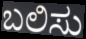
ಬಲಿಸು